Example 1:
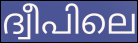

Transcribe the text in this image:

ദ്വീപിലെ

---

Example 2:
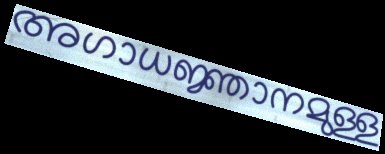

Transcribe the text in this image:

അഗാധജ്ഞാനമുള്ള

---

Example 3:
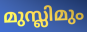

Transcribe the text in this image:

മുസ്ലിമും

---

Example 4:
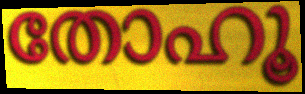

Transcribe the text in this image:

തോഹൂ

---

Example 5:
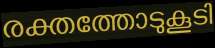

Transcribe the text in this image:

രക്തത്തോടുകൂടി